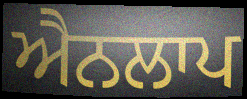
ਐਨਲਾਪ